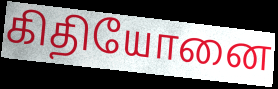
கிதியோனை